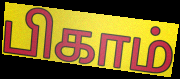
பிகாம்